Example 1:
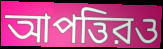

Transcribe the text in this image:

আপত্তিরও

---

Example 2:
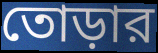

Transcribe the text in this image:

তোড়ার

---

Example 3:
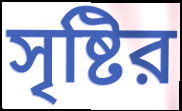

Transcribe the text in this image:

সৃষ্টির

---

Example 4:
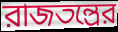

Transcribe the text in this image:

রাজতন্ত্রের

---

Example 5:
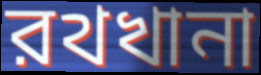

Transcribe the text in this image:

রথখানা